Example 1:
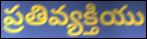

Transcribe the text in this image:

ప్రతివ్యక్తియు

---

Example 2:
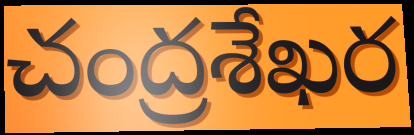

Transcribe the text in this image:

చంద్రశేఖర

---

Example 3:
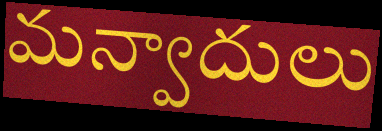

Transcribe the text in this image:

మన్వాదులు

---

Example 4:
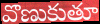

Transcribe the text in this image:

వొణుకుతూ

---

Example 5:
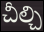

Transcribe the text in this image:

చీల్చి